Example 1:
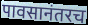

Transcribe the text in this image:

पावसानंतरच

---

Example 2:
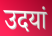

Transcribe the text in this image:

उदयां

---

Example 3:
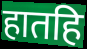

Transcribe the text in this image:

हातहि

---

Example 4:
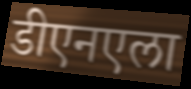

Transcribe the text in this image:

डीएनएला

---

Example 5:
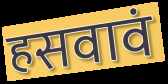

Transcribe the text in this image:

हसवावं